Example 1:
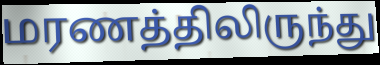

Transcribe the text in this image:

மரணத்திலிருந்து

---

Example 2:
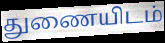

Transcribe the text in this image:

துணையிடம்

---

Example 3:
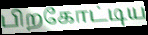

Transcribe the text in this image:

பிறகோட்டிய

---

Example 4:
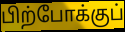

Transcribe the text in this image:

பிற்போக்குப்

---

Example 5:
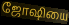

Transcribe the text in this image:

ஜோஷியை